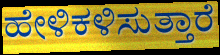
ಹೇಳಿಕಳಿಸುತ್ತಾರೆ